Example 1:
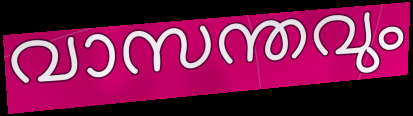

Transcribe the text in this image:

വാസന്തവും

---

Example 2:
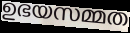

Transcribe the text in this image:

ഉഭയസമ്മത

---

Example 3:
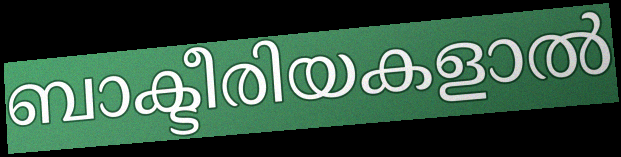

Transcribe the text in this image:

ബാക്ടീരിയകളാൽ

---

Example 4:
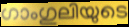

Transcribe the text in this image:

ഗാംഗുലിയുടെ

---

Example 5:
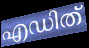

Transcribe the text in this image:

എഡിത്